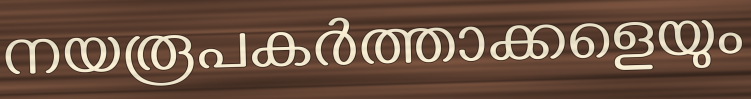
നയരൂപകർത്താക്കളെയും